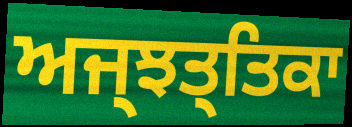
ਅਜ੍ਝਤ੍ਤਿਕਾ